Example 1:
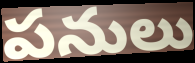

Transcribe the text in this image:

పనులు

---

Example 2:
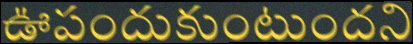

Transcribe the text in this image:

ఊపందుకుంటుందని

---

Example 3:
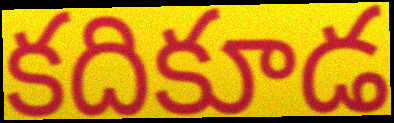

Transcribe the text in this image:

కదికూడ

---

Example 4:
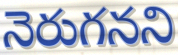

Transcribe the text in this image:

నెరుగనని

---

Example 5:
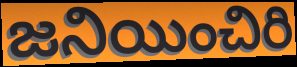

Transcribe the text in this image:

జనియించిరి